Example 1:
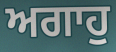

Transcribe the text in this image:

ਅਗਾਹੁ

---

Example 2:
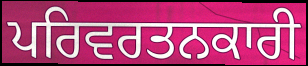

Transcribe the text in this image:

ਪਰਿਵਰਤਨਕਾਰੀ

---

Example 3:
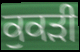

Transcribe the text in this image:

ਕੁਕੜੀ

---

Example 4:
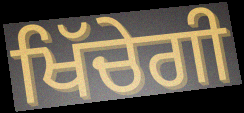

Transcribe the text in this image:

ਖਿੱਚੇਗੀ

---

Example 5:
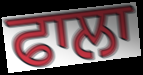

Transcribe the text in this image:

ਫਾਲਾ